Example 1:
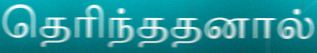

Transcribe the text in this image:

தெரிந்ததனால்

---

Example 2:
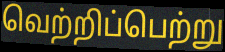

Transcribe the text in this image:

வெற்றிப்பெற்று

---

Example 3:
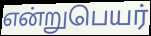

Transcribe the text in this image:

என்றுபெயர்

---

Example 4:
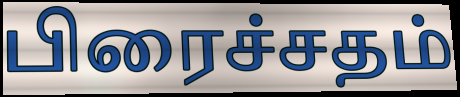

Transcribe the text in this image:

பிரைச்சதம்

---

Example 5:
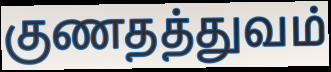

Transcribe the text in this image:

குணதத்துவம்